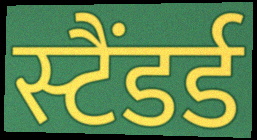
स्‍टैंडर्ड